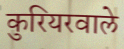
कुरियरवाले